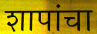
शापांचा